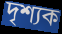
দৃশ্যক